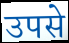
उपसे